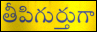
తీపిగుర్తుగా